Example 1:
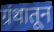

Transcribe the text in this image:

ग्रंथातून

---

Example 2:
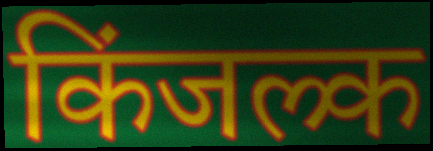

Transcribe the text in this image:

किंजल्क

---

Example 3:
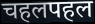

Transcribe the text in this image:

चहलपहल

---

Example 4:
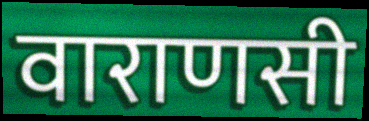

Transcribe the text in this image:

वाराणसी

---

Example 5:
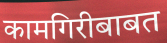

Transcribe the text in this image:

कामगिरीबाबत